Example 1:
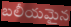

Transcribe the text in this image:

బలీయమైన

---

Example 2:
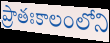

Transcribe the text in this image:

ప్రాతఃకాలంలోని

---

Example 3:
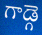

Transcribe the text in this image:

గాడ్గె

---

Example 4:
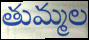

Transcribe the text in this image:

తుమ్మల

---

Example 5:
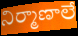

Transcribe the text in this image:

నిర్మాణాలే